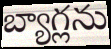
బ్యాగ్లను